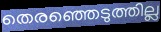
തെരഞ്ഞെടുത്തില്ല